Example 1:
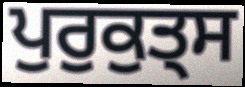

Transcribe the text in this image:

ਪੁਰੁਕੁਤ੍ਸ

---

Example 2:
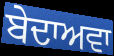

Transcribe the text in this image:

ਬੇਦਾਅਵਾ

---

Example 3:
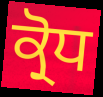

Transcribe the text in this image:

ਕ੍ਰੋਧ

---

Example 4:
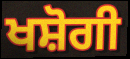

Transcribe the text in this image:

ਖਸ਼ੋਗੀ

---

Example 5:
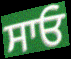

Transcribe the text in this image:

ਸਾਓ